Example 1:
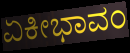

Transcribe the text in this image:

ಏಕೀಭಾವಂ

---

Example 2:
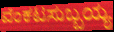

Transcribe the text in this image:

ವೆಂಕಟಸುಬ್ಬಯ್ಯ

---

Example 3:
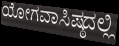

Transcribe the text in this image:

ಯೋಗವಾಸಿಷ್ಠದಲ್ಲಿ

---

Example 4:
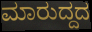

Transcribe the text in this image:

ಮಾರುದ್ದದ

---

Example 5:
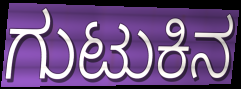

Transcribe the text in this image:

ಗುಟುಕಿನ